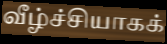
வீழ்ச்சியாகக்